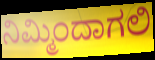
ನಿಮ್ಮಿಂದಾಗಲಿ